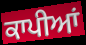
ਕਾਪੀਆਂ